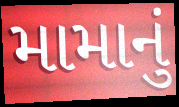
મામાનું